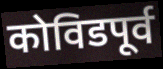
कोविडपूर्व